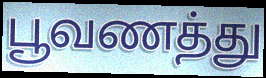
பூவணத்து